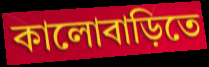
কালোবাড়িতে